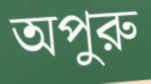
অপুরু